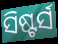
ସିଷ୍ଟର୍ସ